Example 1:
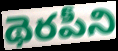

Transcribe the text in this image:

థెరపీని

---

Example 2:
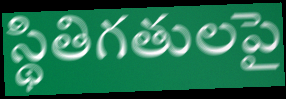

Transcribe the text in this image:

స్థితిగతులపై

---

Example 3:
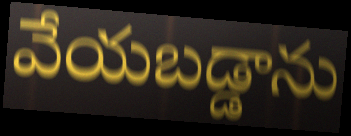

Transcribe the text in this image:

వేయబడ్డాను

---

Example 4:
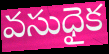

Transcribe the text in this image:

వసుధైక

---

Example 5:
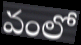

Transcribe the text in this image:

వంలో